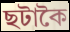
ছটাকৈ